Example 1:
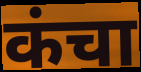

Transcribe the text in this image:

कंचा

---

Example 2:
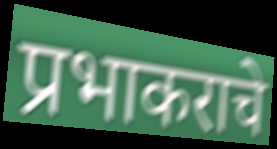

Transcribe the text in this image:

प्रभाकराचे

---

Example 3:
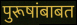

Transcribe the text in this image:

पुरूषांबाबत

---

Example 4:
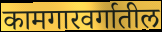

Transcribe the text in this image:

कामगारवर्गातील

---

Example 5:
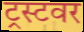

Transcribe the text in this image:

ट्रस्टवर